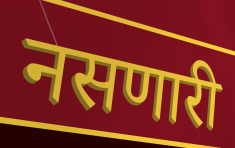
नसणारी